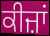
ਕੀਜ਼ਾਂ